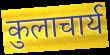
कुलाचार्य